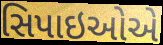
સિપાઇઓએ